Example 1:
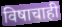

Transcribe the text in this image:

विषाचाही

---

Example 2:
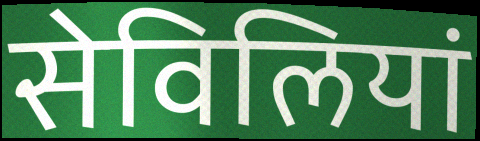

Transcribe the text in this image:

सेविलियां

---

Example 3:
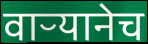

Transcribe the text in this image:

वाऱ्यानेच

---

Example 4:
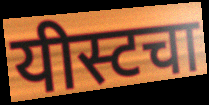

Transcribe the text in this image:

यीस्टचा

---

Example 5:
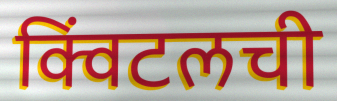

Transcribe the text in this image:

क्विंटलची